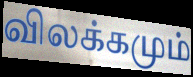
விலக்கமும்